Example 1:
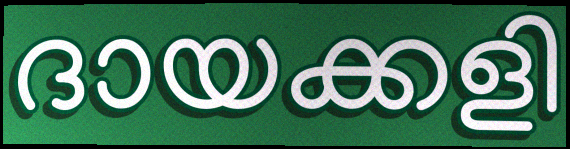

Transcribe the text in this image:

ദായക്കളി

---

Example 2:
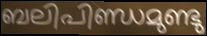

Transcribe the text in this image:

ബലിപിണ്ഡമുണ്ടു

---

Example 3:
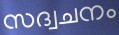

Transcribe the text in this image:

സദ്വചനം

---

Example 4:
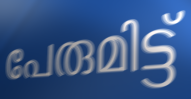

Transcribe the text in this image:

പേരുമിട്ട്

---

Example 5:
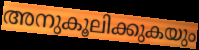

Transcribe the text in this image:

അനുകൂലിക്കുകയും